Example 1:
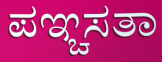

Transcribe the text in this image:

ಪಞ್ಚಸತಾ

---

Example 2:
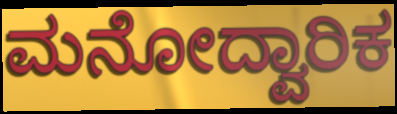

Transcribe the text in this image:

ಮನೋದ್ವಾರಿಕ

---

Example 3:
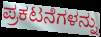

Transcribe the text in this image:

ಪ್ರಕಟನೆಗಳನ್ನು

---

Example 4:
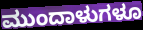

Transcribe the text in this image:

ಮುಂದಾಳುಗಳೂ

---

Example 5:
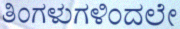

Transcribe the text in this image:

ತಿಂಗಳುಗಳಿಂದಲೇ